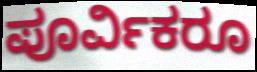
ಪೂರ್ವಿಕರೂ